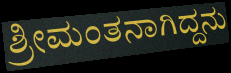
ಶ್ರೀಮಂತನಾಗಿದ್ದನು